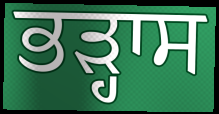
ਭੜ੍ਹਾਸ